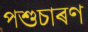
পশুচাৰণ